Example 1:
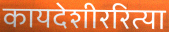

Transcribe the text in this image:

कायदेशीररित्या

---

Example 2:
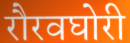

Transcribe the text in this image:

रौरवघोरी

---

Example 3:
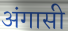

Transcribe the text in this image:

अंगासी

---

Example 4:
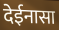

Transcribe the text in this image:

देईनासा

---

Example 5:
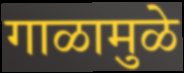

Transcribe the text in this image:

गाळामुळे